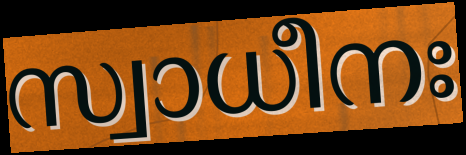
സ്വാധീനഃ